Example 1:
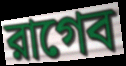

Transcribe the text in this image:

রাগেব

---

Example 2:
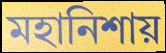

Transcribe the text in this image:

মহানিশায়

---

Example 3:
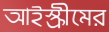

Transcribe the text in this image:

আইস্ক্রীমের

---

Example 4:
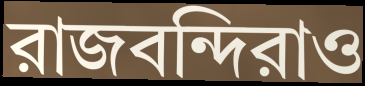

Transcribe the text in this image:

রাজবন্দিরাও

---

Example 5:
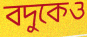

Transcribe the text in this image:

বদুকেও